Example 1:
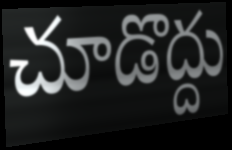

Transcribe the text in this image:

చూడొద్దు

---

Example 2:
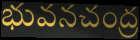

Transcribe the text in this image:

భువనచంద్ర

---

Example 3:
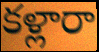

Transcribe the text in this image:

కళ్లారా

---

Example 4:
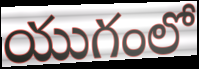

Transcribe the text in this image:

యుగంలో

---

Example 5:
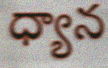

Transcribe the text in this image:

ధ్యాన